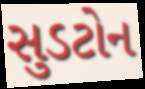
સુડટોન